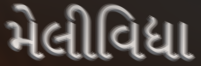
મેલીવિદ્યા